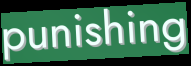
punishing